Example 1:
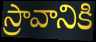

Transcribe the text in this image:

స్రావానికి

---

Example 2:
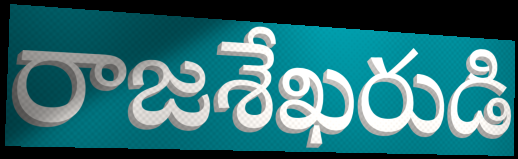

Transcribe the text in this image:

రాజశేఖరుడి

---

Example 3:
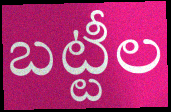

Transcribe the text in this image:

బట్టీల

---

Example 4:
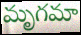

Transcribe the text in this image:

మృగమా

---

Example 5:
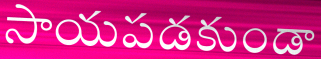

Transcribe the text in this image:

సాయపడకుండా